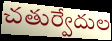
చతుర్వేదుల